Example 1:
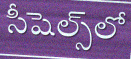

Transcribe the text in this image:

సీషెల్స్‌లో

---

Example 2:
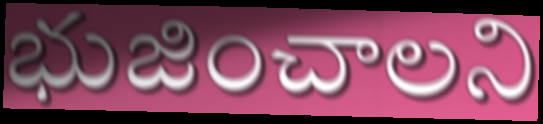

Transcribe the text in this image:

భుజించాలని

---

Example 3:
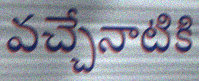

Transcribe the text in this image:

వచ్చేనాటికి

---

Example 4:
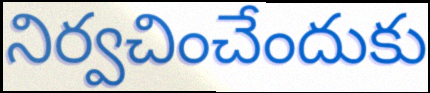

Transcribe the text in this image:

నిర్వచించేందుకు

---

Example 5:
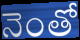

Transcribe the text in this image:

నెంతో